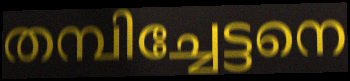
തമ്പിച്ചേട്ടനെ